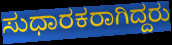
ಸುಧಾರಕರಾಗಿದ್ದರು